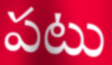
పటు